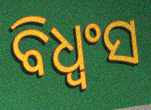
ବିଧ୍ଵଂସ